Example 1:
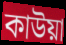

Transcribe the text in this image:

কাউয়া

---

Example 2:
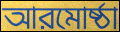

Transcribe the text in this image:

আরমোষ্ঠা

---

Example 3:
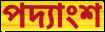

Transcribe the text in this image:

পদ্যাংশ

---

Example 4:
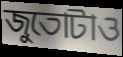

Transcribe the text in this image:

জুতোটাও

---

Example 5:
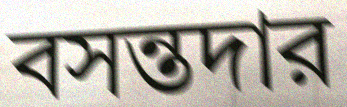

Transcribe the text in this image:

বসন্তদার